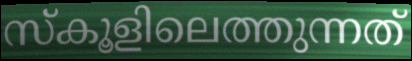
സ്കൂളിലെത്തുന്നത്